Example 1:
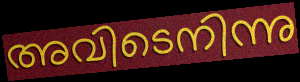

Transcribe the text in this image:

അവിടെനിന്നു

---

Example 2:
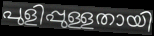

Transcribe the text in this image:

പുളിപ്പുള്ളതായി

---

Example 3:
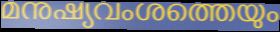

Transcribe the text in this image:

മനുഷ്യവംശത്തെയും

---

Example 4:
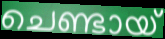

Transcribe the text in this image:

ചെണ്ടായ്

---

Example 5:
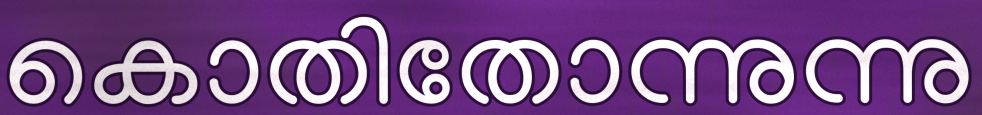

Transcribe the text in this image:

കൊതിതോന്നുന്നു